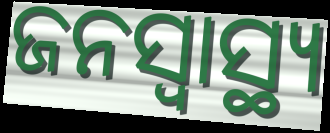
ଜନସ୍ବାସ୍ଥ୍ୟ